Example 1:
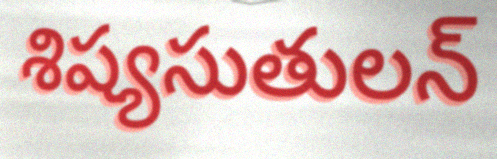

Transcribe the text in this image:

శిష్యసుతులన్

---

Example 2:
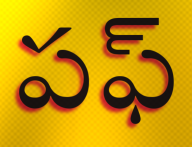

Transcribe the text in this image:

పఫ్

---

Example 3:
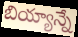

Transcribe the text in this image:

బియ్యాన్నే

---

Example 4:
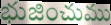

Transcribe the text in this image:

భుజించుము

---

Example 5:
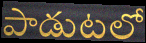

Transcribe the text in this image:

పాడుటలో